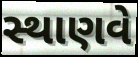
સ્થાણવે